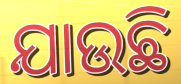
ଯାଉଛି